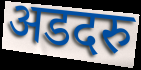
अडदरु